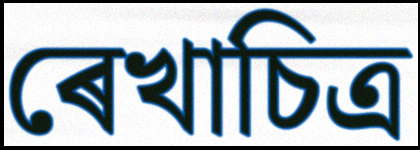
ৰেখাচিত্ৰ